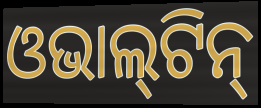
ଓଭାଲ୍‍ଟିନ୍